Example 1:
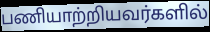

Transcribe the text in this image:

பணியாற்றியவர்களில்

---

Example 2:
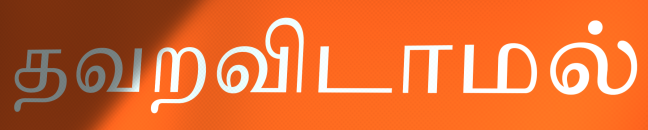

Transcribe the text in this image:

தவறவிடாமல்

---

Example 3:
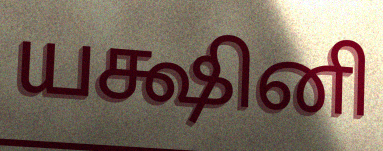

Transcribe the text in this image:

யக்ஷினி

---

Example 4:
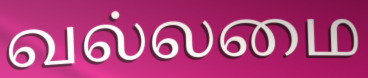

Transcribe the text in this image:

வல்லமை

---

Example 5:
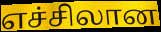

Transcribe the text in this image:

எச்சிலான